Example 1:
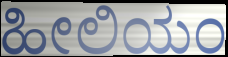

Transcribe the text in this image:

ಹೀಲಿಯಂ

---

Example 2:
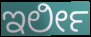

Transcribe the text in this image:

ಇರ್ಲೀ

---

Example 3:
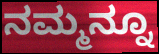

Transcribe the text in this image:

ನಮ್ಮನ್ನೂ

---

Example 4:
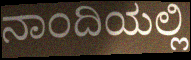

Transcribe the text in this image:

ನಾಂದಿಯಲ್ಲಿ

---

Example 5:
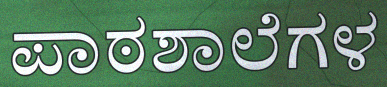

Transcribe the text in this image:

ಪಾಠಶಾಲೆಗಳ